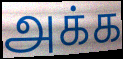
அக்க